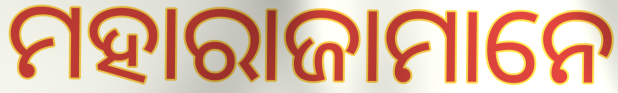
ମହାରାଜାମାନେ